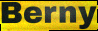
Berny